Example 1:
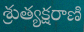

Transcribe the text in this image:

శ్రుత్యక్షరాణి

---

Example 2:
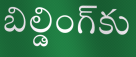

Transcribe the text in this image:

బిల్డింగ్‌కు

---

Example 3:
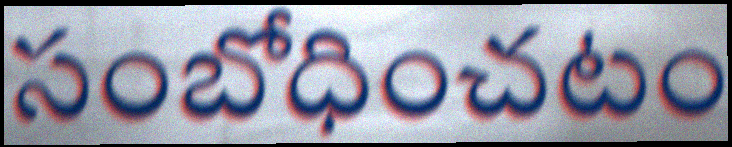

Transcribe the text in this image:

సంబోధించటం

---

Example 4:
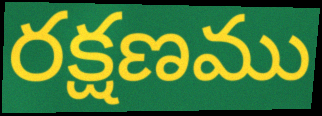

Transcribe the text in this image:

రక్షణము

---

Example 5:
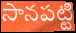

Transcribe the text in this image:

సానపట్టి